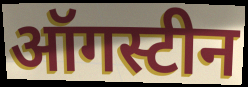
ऑगस्टीन